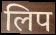
लिप